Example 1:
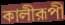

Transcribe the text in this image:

কালীরূপী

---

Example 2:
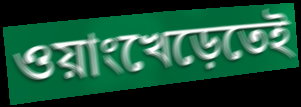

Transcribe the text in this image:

ওয়াংখেড়েতেই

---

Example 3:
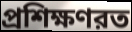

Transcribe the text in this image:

প্রশিক্ষণরত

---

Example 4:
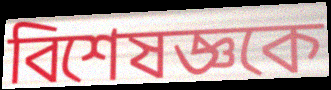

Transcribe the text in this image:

বিশেষজ্ঞকে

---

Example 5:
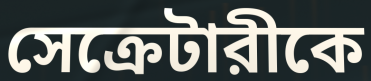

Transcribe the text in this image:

সেক্রেটারীকে